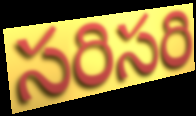
సరిసరి